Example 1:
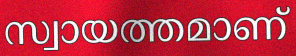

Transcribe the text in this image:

സ്വായത്തമാണ്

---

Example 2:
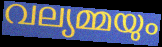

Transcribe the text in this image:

വല്യമ്മയും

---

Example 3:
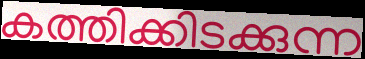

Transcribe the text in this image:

കത്തിക്കിടക്കുന്ന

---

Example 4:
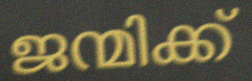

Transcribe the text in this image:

ജന്മിക്ക്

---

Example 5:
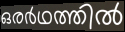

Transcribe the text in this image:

ഒരർഥത്തിൽ